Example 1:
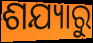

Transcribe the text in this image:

ଶଯ୍ୟାରୁ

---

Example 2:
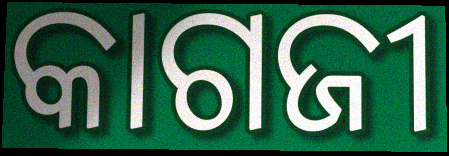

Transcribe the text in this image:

କାଗଜୀ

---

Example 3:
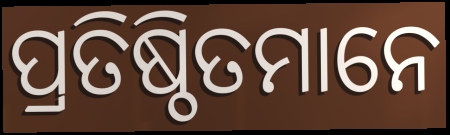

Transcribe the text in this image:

ପ୍ରତିଷ୍ଠିତମାନେ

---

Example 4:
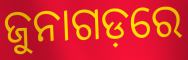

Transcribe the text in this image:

ଜୁନାଗଡ଼ରେ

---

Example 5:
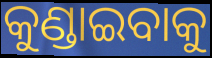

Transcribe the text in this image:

କୁଣ୍ଡାଇବାକୁ